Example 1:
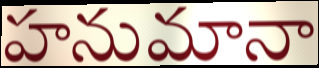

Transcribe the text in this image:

హనుమానా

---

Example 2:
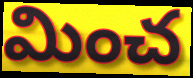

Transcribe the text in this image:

మించ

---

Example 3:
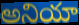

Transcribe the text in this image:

అనియా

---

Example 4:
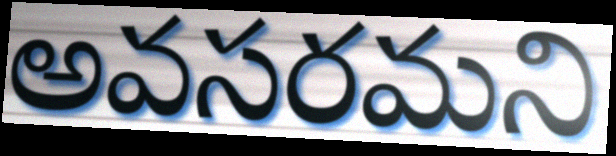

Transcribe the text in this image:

అవసరమని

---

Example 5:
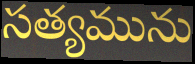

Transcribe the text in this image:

సత్యమును